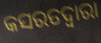
କସରତଦ୍ୱାରା